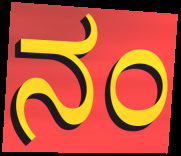
ನಂ